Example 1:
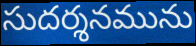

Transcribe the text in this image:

సుదర్శనమును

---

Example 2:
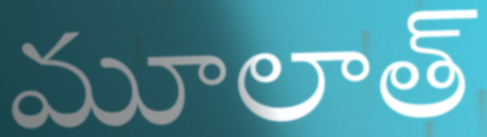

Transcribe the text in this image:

మూలాత్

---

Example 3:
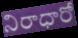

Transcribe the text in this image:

నిరాధారో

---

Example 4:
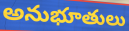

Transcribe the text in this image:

అనుభూతులు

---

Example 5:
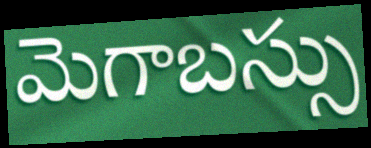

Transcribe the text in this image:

మెగాబస్సు